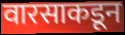
वारसाकडून